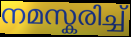
നമസ്കരിച്ച്